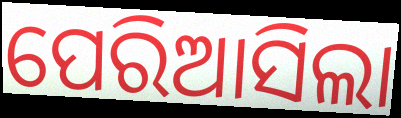
ପେରିଆସିଲା